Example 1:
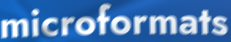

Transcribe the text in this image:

microformats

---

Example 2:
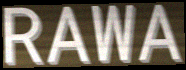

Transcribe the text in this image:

RAWA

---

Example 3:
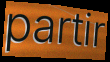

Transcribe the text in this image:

partir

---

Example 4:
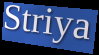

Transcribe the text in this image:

Striya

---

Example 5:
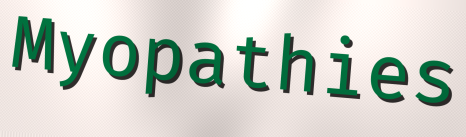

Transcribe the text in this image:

Myopathies